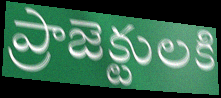
ప్రాజెక్టులకి